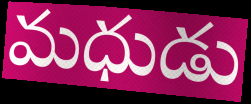
మధుడు